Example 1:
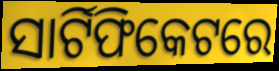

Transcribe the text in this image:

ସାର୍ଟିଫିକେଟରେ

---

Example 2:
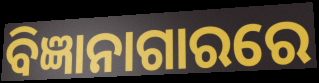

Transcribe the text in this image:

ବିଜ୍ଞାନାଗାରରେ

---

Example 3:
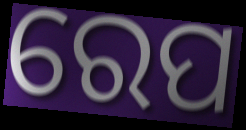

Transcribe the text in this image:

ରେପ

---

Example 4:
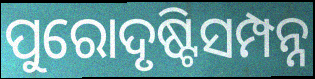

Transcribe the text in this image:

ପୁରୋଦୃଷ୍ଟିସମ୍ପନ୍ନ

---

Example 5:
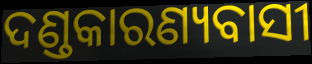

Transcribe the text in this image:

ଦଣ୍ଡକାରଣ୍ୟବାସୀ